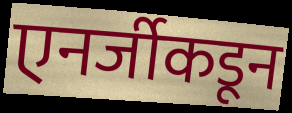
एनर्जीकडून